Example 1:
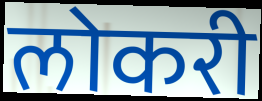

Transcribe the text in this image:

लोकरी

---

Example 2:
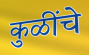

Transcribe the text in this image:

कुळींचे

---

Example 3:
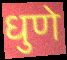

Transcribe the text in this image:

धुणे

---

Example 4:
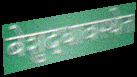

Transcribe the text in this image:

बेशुद्धावस्थेत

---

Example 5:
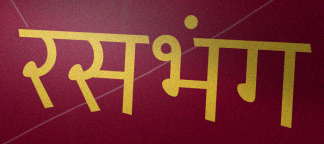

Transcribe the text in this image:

रसभंग